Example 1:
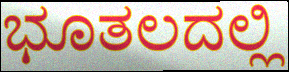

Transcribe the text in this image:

ಭೂತಲದಲ್ಲಿ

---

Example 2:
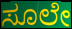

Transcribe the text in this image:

ಸೂಲೇ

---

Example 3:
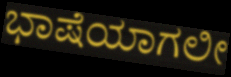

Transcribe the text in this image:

ಭಾಷೆಯಾಗಲೀ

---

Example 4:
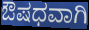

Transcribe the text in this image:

ಔಷಧವಾಗಿ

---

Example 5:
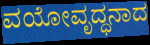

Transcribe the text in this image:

ವಯೋವೃದ್ಧನಾದ